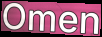
Omen